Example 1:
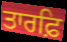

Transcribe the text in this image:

ਤਾਰਫ਼ਿ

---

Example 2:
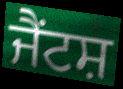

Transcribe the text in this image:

ਜੈਂਟਸ਼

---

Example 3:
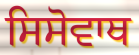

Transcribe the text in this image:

ਸਿਸੋਵਾਥ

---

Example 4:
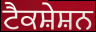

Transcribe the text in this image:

ਟੈਕਸ਼ੇਸ਼ਨ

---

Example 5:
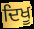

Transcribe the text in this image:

ਦਿਖੂ